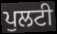
ਪੁਲਟੀ